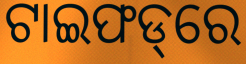
ଟାଇଫଡ୍‌ରେ